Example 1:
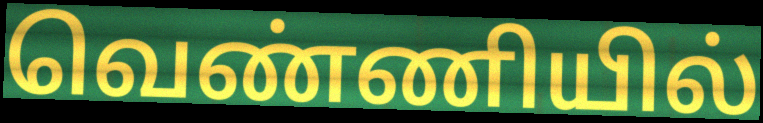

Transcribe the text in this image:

வெண்ணியில்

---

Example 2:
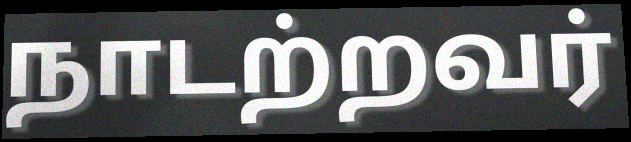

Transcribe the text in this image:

நாடற்றவர்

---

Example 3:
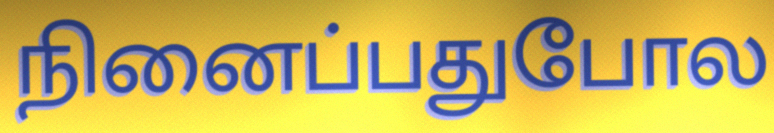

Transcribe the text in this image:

நினைப்பதுபோல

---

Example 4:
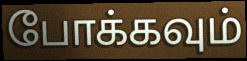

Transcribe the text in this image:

போக்கவும்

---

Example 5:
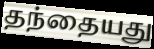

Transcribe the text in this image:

தந்தையது